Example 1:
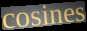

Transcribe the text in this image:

cosines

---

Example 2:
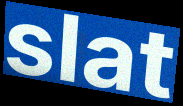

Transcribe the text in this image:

slat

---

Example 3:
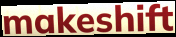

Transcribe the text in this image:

makeshift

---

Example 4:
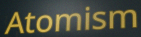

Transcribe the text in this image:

Atomism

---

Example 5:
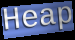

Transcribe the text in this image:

Heap